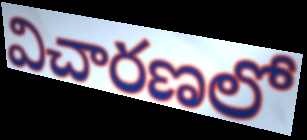
విచారణలో